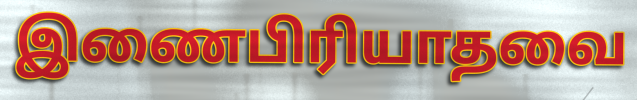
இணைபிரியாதவை